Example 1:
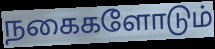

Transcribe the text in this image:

நகைகளோடும்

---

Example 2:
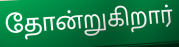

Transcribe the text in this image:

தோன்றுகிறார்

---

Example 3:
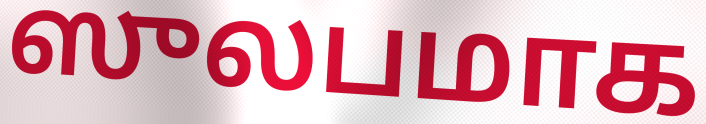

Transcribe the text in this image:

ஸுலபமாக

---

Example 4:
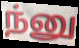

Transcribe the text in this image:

ந்னு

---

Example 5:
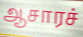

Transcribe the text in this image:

ஆசாரச்